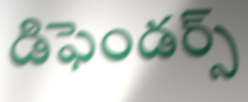
డిఫెండర్స్